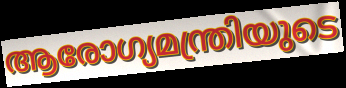
ആരോഗ്യമന്ത്രിയുടെ